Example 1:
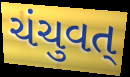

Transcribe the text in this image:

ચંચુવત્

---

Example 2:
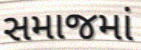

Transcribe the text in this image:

સમાજમાં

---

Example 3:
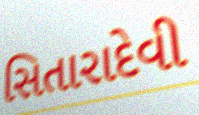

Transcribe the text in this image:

સિતારાદેવી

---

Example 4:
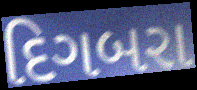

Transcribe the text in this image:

દિગબરા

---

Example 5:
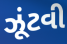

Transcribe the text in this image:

ઝૂંટવી